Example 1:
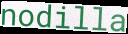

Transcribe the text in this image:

nodilla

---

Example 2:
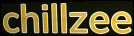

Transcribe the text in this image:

chillzee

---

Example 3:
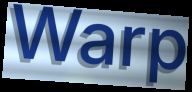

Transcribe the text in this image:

Warp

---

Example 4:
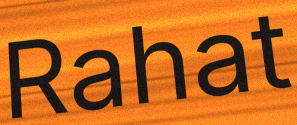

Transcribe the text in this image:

Rahat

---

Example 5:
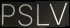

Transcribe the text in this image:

PSLV